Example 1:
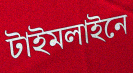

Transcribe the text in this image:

টাইমলাইনে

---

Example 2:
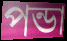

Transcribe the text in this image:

পন্ডা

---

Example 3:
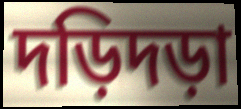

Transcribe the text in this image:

দড়িদড়া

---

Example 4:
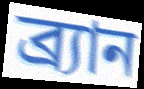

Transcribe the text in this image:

ব্র্যান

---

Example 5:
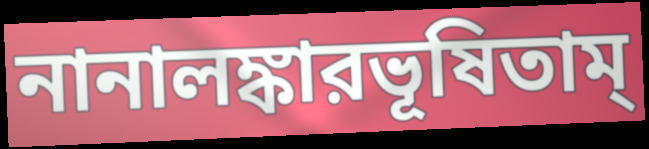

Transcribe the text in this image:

নানালঙ্কারভূষিতাম্